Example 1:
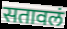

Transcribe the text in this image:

सतावलं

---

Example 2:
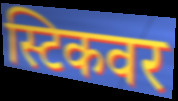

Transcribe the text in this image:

स्टिकवर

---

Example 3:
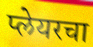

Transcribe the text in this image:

प्लेयरचा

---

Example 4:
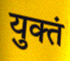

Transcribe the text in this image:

युक्तं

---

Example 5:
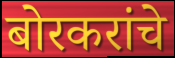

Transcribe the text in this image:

बोरकरांचे